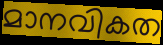
മാനവികത